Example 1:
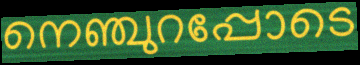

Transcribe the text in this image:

നെഞ്ചുറപ്പോടെ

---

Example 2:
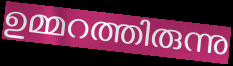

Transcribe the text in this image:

ഉമ്മറത്തിരുന്നു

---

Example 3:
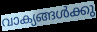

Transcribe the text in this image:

വാക്യങ്ങൾക്കു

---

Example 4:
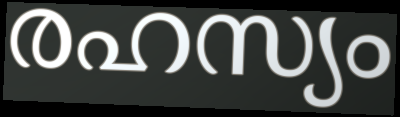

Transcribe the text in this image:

രഹസ്യം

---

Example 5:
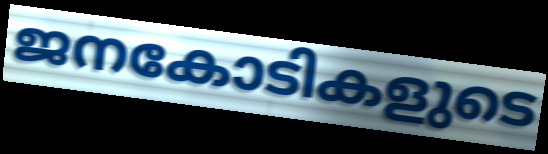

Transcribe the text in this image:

ജനകോടികളുടെ